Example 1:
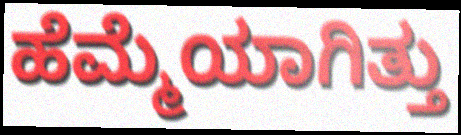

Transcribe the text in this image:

ಹೆಮ್ಮೆಯಾಗಿತ್ತು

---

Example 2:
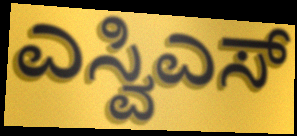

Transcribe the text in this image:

ಎಸ್ವಿಎಸ್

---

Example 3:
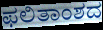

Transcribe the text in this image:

ಫಲಿತಾಂಶದ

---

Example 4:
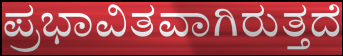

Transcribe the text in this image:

ಪ್ರಭಾವಿತವಾಗಿರುತ್ತದೆ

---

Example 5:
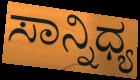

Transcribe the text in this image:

ಸಾನ್ನಿಧ್ಯ